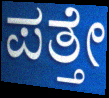
ಪತ್ತೇ